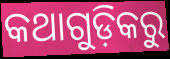
କଥାଗୁଡ଼ିକରୁ